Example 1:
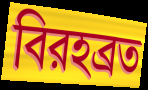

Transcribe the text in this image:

বিরহব্রত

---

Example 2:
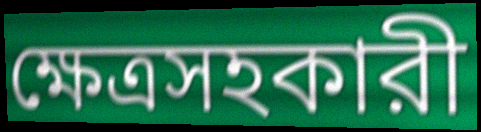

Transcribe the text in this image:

ক্ষেত্রসহকারী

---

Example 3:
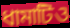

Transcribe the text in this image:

ধামাটিও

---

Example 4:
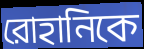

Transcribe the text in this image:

রোহানিকে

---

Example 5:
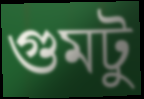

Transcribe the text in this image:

গুমটু